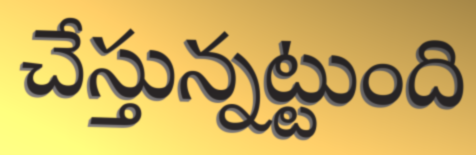
చేస్తున్నట్టుంది